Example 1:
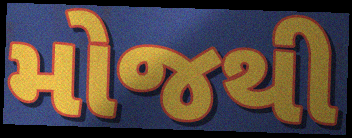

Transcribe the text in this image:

મોજથી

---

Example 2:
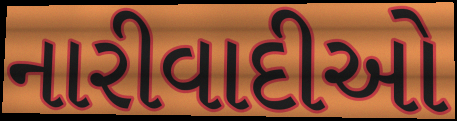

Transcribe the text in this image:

નારીવાદીઓ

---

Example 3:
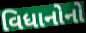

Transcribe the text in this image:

વિધાનોનો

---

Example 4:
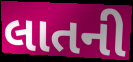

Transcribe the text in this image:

લાતની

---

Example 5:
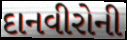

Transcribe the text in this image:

દાનવીરોની